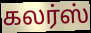
கலர்ஸ்